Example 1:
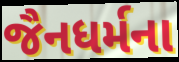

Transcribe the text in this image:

જૈનધર્મના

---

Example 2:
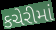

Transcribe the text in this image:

કચેરીમાં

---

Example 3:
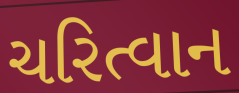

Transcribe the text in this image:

ચરિત્વાન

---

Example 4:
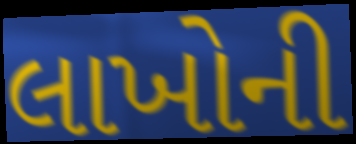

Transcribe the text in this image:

લાખોની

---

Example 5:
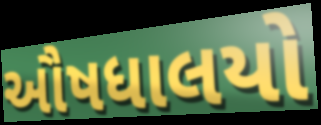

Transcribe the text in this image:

ઔષધાલયો